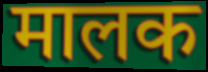
मालक